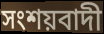
সংশয়বাদী